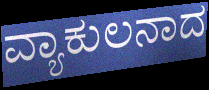
ವ್ಯಾಕುಲನಾದ